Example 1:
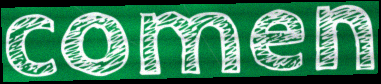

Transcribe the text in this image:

comen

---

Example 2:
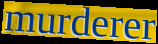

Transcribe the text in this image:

murderer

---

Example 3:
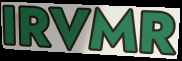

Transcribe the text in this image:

IRVMR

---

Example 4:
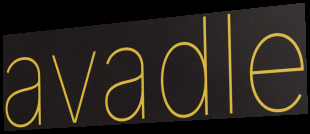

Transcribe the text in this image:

avadle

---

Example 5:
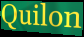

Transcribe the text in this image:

Quilon